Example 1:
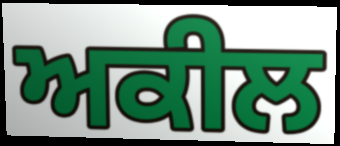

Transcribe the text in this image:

ਅਕੀਲ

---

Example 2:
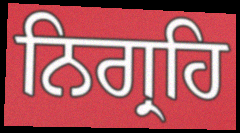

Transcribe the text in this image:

ਨਿਗ੍ਰਹਿ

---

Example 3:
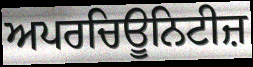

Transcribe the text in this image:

ਅਪਰਚਿਊਨਿਟੀਜ਼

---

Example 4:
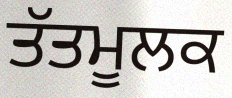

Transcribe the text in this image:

ਤੱਤਮੂਲਕ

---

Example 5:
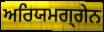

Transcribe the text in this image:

ਅਰਿਯਮਗ੍ਗੇਨ